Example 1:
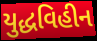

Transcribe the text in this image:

યુદ્ધવિહીન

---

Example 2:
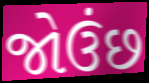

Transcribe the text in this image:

જોઉંછ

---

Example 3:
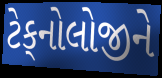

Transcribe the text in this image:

ટેક્‌નોલોજીને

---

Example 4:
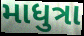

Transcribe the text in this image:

માધુત્રા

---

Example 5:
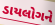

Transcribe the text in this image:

ડાયલોગને